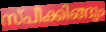
സ്പീക്കിങ്ങും